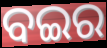
ବଇର